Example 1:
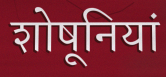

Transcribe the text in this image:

शोषूनियां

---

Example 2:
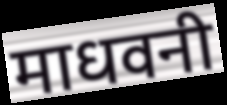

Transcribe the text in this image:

माधवनी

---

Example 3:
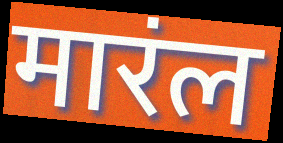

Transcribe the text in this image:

मारंल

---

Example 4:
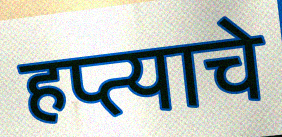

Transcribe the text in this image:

हप्त्याचे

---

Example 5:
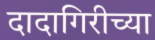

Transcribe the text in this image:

दादागिरीच्या